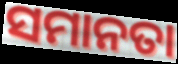
ସମାନତା